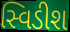
સ્વિડીશ